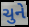
ચુને